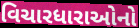
વિચારધારાઓનો